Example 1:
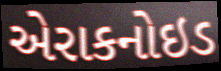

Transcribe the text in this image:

એરાકનોઇડ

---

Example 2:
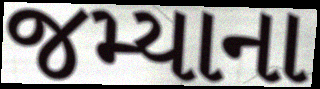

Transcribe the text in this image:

જમ્યાના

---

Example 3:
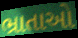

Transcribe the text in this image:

ભ્રાતાઓ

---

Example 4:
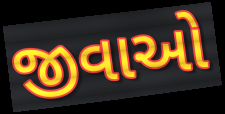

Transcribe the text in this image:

જીવાઓ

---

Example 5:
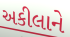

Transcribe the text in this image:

અકીલાને